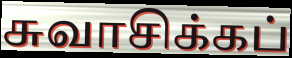
சுவாசிக்கப்